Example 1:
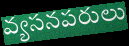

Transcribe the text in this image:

వ్యసనపరులు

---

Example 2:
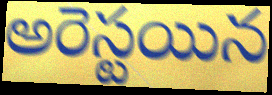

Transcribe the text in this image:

అరెస్టయిన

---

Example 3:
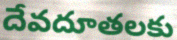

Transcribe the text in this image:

దేవదూతలకు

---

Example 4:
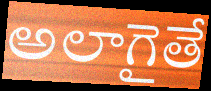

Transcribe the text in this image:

అలాగైతే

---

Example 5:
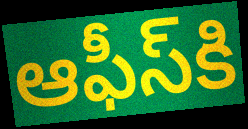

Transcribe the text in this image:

ఆఫీస్‌కి